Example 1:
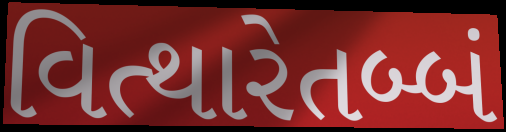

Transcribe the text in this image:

વિત્થારેતબ્બં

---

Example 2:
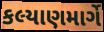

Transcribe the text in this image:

કલ્યાણમાર્ગે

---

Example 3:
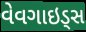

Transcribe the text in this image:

વેવગાઇડ્સ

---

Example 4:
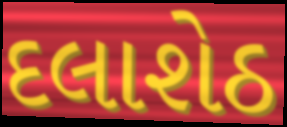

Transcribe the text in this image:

દલાશેઠ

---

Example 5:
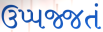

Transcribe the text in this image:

ઉપ્પજ્જતં